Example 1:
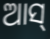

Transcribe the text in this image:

ଆସ୍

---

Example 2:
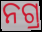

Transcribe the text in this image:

ନଗ୍ର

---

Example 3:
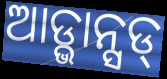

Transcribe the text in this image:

ଆଡ୍ଭାନ୍ସଡ୍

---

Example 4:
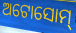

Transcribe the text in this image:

ଅଟୋସୋମ୍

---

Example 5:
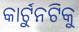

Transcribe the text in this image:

କାର୍ଟୁନଟିକୁ